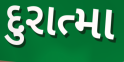
દુરાત્મા